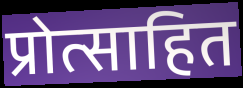
प्रोत्साहित